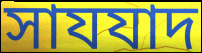
সাযযাদ